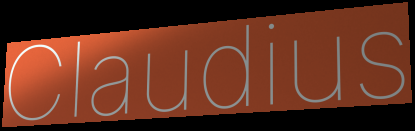
Claudius